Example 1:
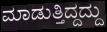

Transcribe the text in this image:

ಮಾಡುತ್ತಿದ್ದದ್ದು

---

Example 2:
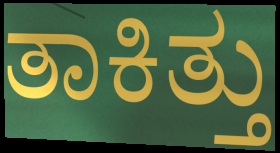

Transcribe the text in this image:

ತಾಕಿತ್ತು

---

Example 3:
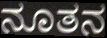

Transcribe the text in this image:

ನೂತನ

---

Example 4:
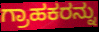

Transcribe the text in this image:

ಗ್ರಾಹಕರನ್ನು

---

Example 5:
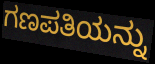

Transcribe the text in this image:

ಗಣಪತಿಯನ್ನು